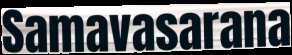
Samavasarana